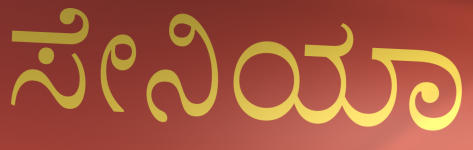
ಸೇನಿಯಾ